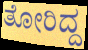
ತೋರಿದ್ದ